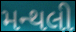
મન્થલી